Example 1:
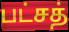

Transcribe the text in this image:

பட்சத்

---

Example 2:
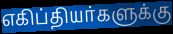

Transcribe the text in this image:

எகிப்தியர்களுக்கு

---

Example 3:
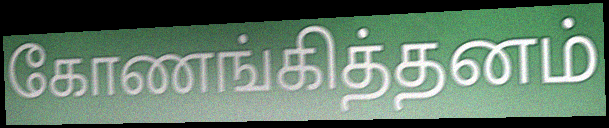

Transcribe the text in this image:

கோணங்கித்தனம்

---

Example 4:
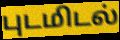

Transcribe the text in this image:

புடமிடல்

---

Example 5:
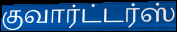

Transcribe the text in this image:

குவார்ட்டர்ஸ்